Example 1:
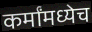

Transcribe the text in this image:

कर्मांमध्येच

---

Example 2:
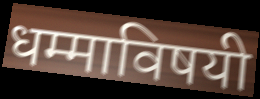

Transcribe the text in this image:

धम्माविषयी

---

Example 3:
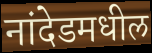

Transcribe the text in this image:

नांदेडमधील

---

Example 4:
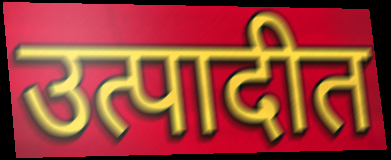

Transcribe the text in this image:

उत्पादीत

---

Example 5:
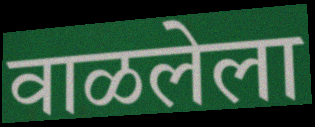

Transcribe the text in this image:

वाळलेला